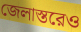
জেলাস্তরেও